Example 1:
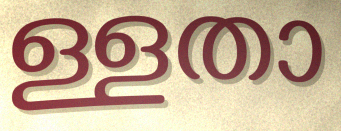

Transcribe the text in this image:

ള്ളതാ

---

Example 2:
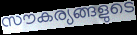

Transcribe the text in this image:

സൗകര്യങ്ങളുടെ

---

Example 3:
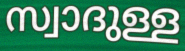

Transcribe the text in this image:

സ്വാദുള്ള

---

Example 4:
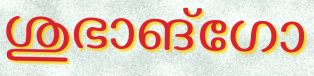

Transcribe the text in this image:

ശുഭാങ്ഗോ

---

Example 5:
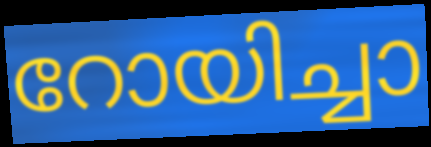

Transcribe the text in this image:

റോയിച്ചാ